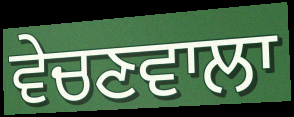
ਵੇਚਣਵਾਲਾ